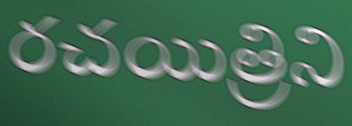
రచయిత్రిని